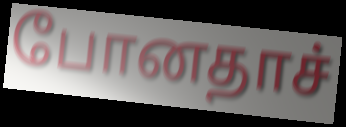
போனதாச்